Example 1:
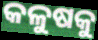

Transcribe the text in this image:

କଳୁଷକୁ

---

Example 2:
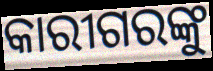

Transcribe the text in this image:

କାରୀଗରଙ୍କୁ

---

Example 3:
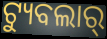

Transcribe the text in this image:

ଟ୍ୟୁବଲାର୍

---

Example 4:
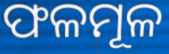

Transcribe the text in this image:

ଫଳମୂଳ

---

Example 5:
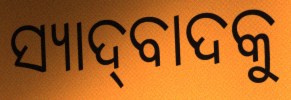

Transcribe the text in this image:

ସ୍ୟାଦ୍‌ବାଦକୁ